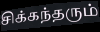
சிக்கந்தரும்